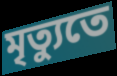
মৃত্যুতে